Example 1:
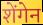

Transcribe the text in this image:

शेंगेन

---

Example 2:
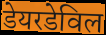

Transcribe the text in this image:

डेयरडेविल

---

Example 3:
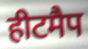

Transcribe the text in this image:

हीटमैप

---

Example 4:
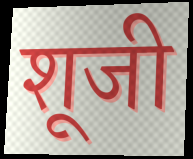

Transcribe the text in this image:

शूजी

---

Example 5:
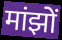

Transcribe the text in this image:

मांझों